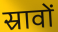
स्रावों